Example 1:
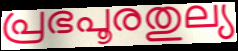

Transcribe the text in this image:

പ്രഭപൂരതുല്യ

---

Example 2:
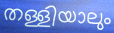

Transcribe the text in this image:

തള്ളിയാലും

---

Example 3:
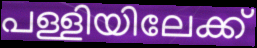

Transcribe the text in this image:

പള്ളിയിലേക്ക്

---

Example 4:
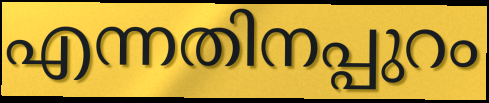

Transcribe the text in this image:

എന്നതിനപ്പുറം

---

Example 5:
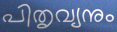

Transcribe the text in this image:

പിതൃവ്യനും